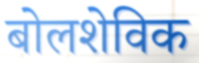
बोलशेविक